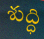
శుద్ధి